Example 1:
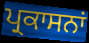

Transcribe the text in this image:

ਪ੍ਰਕਾਸਨਾਂ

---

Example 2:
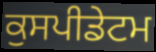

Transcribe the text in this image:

ਕੁਸਪੀਡੇਟਮ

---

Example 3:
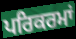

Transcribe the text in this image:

ਪਰਿਕਰਮਾਂ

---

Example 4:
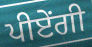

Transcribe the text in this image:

ਪੀਏਂਗੀ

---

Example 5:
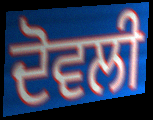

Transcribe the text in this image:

ਦੋਵਲੀ